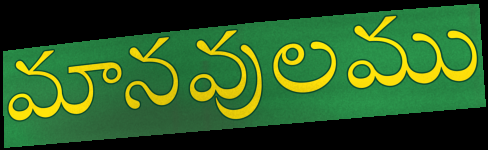
మానవులము